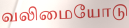
வலிமையோடு